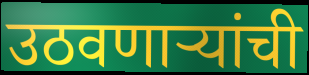
उठवणाऱ्यांची